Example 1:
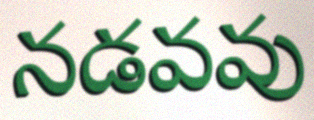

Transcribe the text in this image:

నడవవు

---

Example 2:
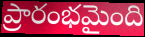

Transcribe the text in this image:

ప్రారంభమైంది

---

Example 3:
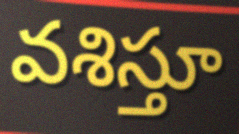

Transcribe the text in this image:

వశిస్తూ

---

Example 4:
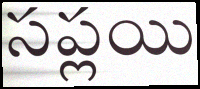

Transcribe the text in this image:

సప్లయి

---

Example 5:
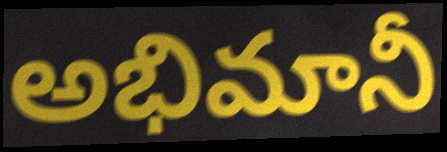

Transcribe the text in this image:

అభిమానీ